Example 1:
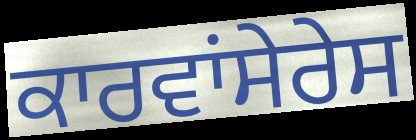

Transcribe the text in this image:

ਕਾਰਵਾਂਸੇਰੇਸ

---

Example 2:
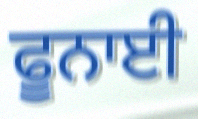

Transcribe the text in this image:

ਫੂਨਾਈ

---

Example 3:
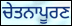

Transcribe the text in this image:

ਚੇਤਨਾਪੂਰਣ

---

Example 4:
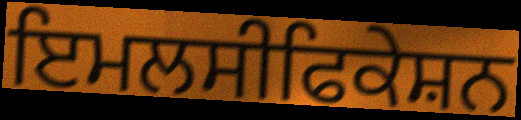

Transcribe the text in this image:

ਇਮਲਸੀਫਿਕੇਸ਼ਨ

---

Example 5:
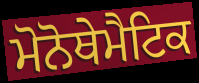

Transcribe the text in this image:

ਮੋਨੋਥੇਮੈਟਿਕ